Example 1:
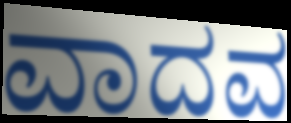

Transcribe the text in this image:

ವಾದವ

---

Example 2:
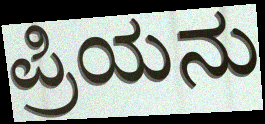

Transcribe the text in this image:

ಪ್ರಿಯನು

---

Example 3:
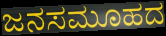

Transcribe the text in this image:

ಜನಸಮೂಹದ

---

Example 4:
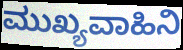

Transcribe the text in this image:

ಮುಖ್ಯವಾಹಿನಿ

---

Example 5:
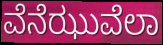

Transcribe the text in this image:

ವೆನೆಝುವೆಲಾ